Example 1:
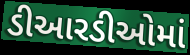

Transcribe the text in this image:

ડીઆરડીઓમાં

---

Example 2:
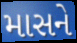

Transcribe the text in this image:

માસને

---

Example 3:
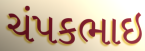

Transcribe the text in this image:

ચંપકભાઇ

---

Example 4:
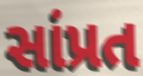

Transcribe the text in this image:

સાંપ્રત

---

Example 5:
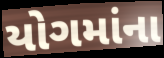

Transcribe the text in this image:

યોગમાંના